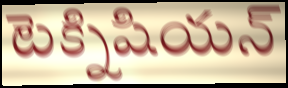
టెక్నిషియన్